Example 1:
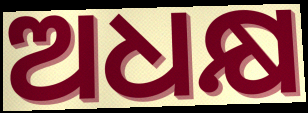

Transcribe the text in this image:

ଅଧକ୍ଷ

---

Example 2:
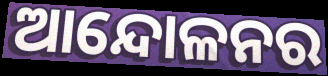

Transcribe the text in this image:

ଆନ୍ଦୋଳନର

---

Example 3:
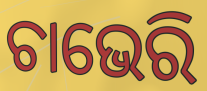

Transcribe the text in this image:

ଚାଭେରି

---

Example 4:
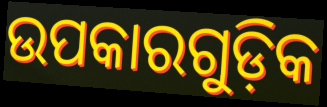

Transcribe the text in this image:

ଉପକାରଗୁଡ଼ିକ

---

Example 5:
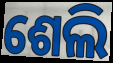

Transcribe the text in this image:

ଶେଲି